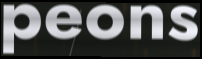
peons